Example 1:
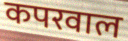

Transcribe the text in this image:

कपरवाल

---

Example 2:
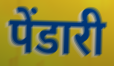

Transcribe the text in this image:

पेंडारी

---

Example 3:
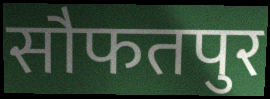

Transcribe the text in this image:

सौफतपुर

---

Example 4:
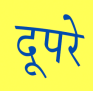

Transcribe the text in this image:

दूपरे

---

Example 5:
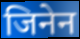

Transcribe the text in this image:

जिनेन